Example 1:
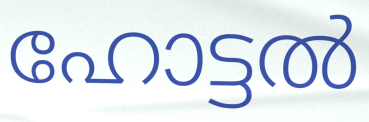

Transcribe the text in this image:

ഹോട്ടൽ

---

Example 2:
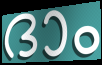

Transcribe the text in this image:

ദാം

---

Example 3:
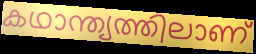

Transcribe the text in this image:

കഥാന്ത്യത്തിലാണ്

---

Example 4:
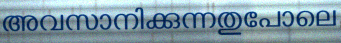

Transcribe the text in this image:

അവസാനിക്കുന്നതുപോലെ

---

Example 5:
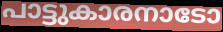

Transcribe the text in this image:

പാട്ടുകാരനാടോ